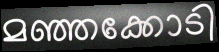
മഞ്ഞക്കോടി